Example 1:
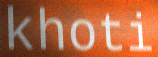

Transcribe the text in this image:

khoti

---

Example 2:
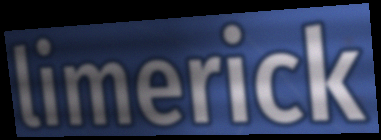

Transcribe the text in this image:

limerick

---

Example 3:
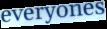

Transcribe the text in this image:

everyones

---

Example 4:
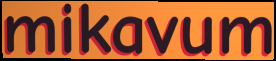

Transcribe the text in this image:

mikavum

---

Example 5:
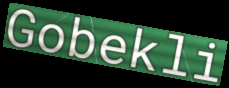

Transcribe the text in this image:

Gobekli